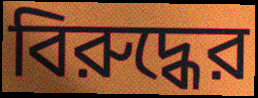
বিরুদ্ধের